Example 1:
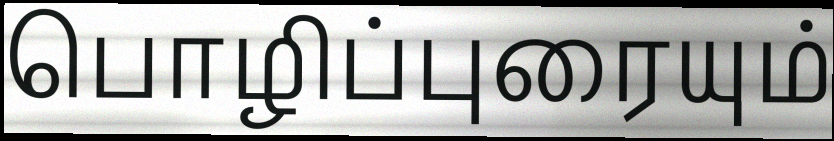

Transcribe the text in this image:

பொழிப்புரையும்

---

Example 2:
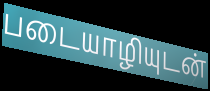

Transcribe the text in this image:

படையாழியுடன்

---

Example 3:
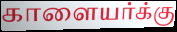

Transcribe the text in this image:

காளையர்க்கு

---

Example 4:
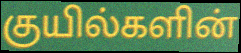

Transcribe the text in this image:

குயில்களின்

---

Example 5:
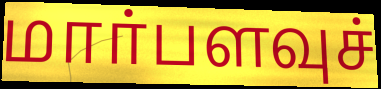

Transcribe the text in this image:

மார்பளவுச்